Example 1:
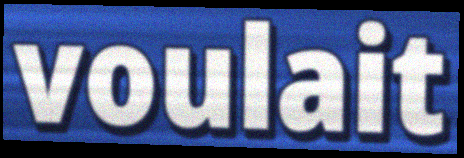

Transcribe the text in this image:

voulait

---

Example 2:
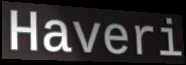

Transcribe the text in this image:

Haveri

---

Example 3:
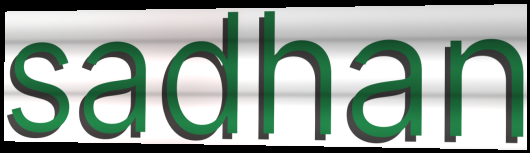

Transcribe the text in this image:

sadhan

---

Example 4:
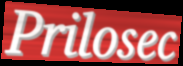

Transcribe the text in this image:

Prilosec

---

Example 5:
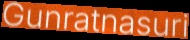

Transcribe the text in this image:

Gunratnasuri